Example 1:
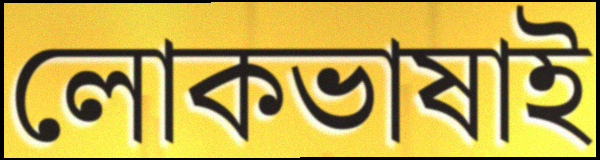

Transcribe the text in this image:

লোকভাষাই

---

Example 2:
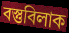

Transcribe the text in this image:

বস্তুবিলাক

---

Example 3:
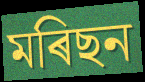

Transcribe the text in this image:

মৰিছন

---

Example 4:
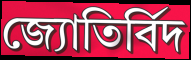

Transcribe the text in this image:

জ্যোতিৰ্বিদ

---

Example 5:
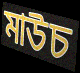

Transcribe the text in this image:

মাউচ